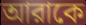
আরাকে